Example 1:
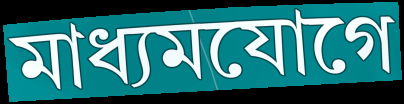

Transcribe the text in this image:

মাধ্যমযোগে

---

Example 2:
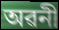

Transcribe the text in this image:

অৱনী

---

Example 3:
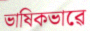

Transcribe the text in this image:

ভাষিকভাৱে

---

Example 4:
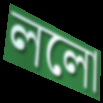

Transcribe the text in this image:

ললো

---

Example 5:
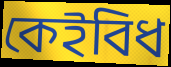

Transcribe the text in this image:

কেইবিধ